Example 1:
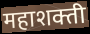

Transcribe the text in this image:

महाशक्‍ती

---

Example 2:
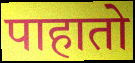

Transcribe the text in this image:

पाहातो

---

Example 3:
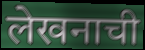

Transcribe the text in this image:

लेखनाची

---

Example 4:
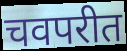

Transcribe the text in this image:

चवपरीत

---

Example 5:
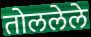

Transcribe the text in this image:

तोललेले